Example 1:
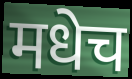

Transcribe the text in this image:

मधेच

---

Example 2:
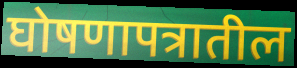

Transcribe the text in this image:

घोषणापत्रातील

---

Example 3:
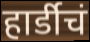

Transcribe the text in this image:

हार्डीचं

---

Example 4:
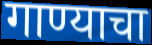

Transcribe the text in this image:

गाण्याचा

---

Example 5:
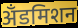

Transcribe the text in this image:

अँडमिशन